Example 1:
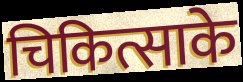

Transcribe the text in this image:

चिकित्साके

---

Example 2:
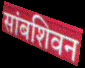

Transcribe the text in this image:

सांबशिवन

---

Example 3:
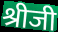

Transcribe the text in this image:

श्रीजी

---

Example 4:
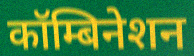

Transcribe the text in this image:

कॉम्बिनेशन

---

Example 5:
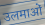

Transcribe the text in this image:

उलमाओं